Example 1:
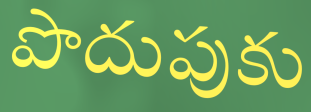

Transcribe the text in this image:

పొదుపుకు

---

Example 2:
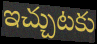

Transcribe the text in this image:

ఇచ్చుటకు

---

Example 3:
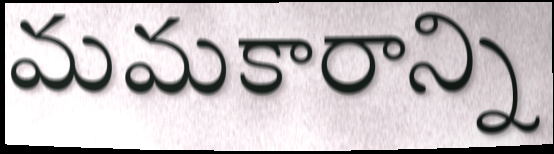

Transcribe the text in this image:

మమకారాన్ని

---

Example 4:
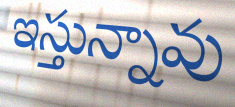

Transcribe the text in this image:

ఇస్తున్నావు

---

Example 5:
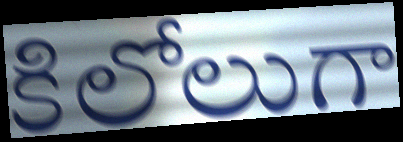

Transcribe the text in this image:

కిలోలుగా